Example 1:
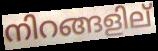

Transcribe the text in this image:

നിറങ്ങളില്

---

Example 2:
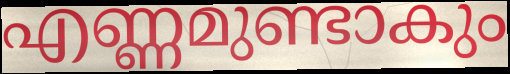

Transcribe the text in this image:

എണ്ണമുണ്ടാകും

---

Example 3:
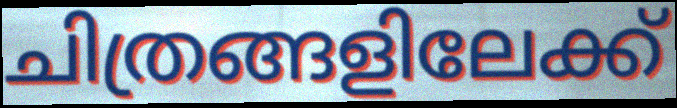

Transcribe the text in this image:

ചിത്രങ്ങളിലേക്ക്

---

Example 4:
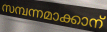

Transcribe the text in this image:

സമ്പന്നമാക്കാന്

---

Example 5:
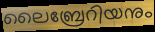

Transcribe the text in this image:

ലൈബ്രേറിയനും